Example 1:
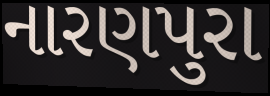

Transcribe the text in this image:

નારણપુરા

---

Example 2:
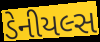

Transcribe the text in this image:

ડેનીયલ્સ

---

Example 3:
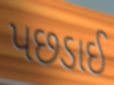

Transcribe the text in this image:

પછડાઈ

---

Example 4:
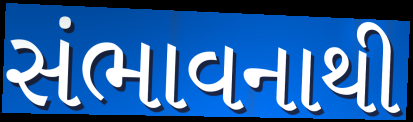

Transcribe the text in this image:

સંભાવનાથી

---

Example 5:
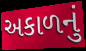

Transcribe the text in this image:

અકાળનું